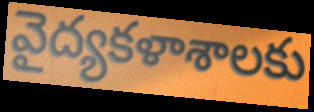
వైద్యకళాశాలకు